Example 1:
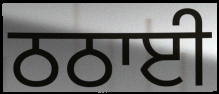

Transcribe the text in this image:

ਠਠਾਈ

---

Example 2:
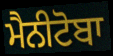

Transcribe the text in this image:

ਮੈਨੀਟੋਬਾ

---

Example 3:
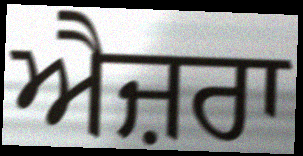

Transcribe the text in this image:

ਐਜ਼ਰਾ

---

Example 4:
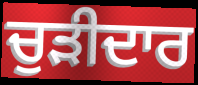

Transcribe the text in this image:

ਚੁੜੀਦਾਰ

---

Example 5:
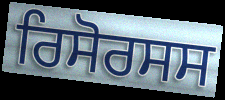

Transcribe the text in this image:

ਰਿਸੋਰਸਸ